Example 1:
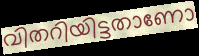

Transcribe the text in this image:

വിതറിയിട്ടതാണോ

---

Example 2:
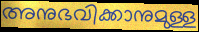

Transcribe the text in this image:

അനുഭവിക്കാനുമുള്ള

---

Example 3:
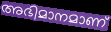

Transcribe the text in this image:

അഭിമാനമാണ്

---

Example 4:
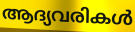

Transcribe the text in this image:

ആദ്യവരികൾ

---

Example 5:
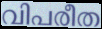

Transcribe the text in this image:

വിപരീത